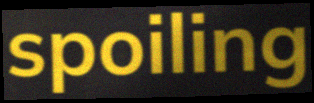
spoiling